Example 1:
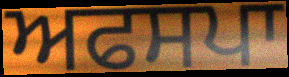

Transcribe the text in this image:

ਅਫਸਪਾ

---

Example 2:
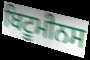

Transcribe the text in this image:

ਬਿਟੂਮੀਨਸ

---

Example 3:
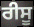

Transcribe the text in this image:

ਰੀਸੂ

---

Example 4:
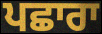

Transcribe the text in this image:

ਪਛਾਰਾ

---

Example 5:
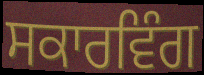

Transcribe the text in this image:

ਸਕਾਰਵਿੰਗ